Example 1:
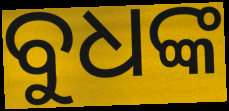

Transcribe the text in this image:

ବୁଧଙ୍କ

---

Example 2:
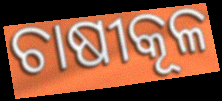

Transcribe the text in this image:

ଚାଷୀକୂଳ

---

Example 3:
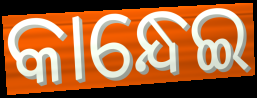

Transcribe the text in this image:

କାନ୍ଧେଇ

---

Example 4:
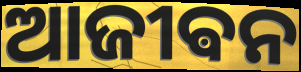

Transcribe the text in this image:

ଆଜୀଵନ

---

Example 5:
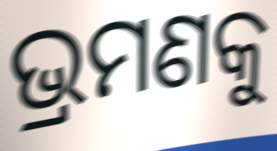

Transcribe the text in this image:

ଭ୍ରମଣକୁ